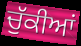
ਚੁੱਕੀਆਂ